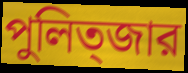
পুলিত্জার